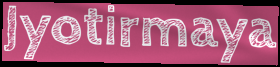
Jyotirmaya